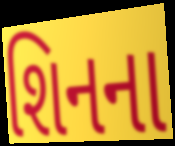
શિનના